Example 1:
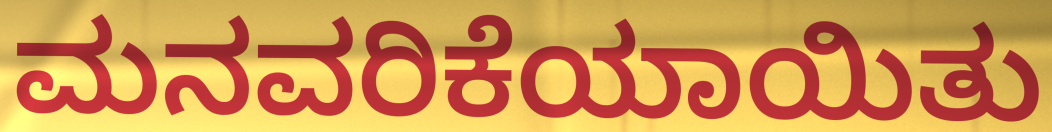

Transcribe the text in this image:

ಮನವರಿಕೆಯಾಯಿತು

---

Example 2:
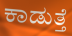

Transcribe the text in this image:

ಕಾಡುತ್ತೆ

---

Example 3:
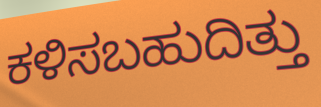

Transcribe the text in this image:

ಕಳಿಸಬಹುದಿತ್ತು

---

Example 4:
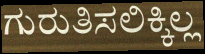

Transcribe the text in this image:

ಗುರುತಿಸಲಿಕ್ಕಿಲ್ಲ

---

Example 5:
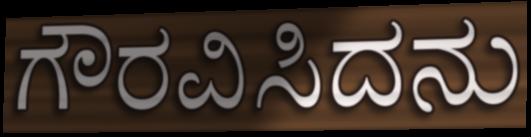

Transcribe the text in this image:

ಗೌರವಿಸಿದನು